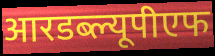
आरडब्ल्यूपीएफ